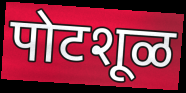
पोटशूळ